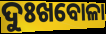
ଦୁଃଖବୋଳା